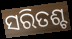
ସରିତଶ୍ଚ